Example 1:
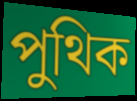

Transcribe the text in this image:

পুথিক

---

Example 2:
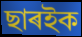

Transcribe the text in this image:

ছাৰইক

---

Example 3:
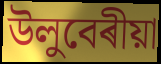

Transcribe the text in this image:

উলুবেৰীয়া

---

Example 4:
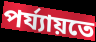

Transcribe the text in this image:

পৰ্য্যায়তে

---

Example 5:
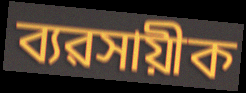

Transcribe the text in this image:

ব্যৱসায়ীক